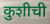
कुशीची